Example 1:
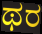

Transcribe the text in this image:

ಥರ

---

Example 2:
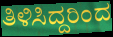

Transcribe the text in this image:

ತಿಳಿಸಿದ್ದರಿಂದ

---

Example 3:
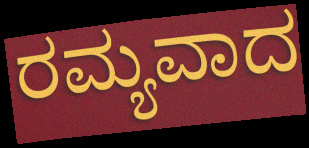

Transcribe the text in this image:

ರಮ್ಯವಾದ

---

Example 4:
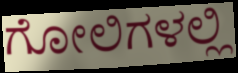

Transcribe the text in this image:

ಗೋಲಿಗಳಲ್ಲಿ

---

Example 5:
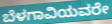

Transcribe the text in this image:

ಬೆಳಗಾವಿಯವರೇ